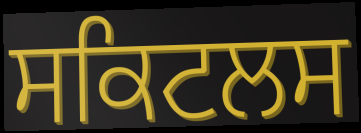
ਸਕਿਟਲਸ